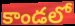
కాండలో